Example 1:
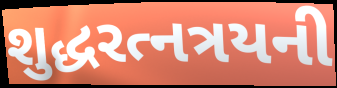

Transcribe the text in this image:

શુદ્ધરત્નત્રયની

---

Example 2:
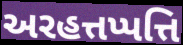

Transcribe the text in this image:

અરહત્તપ્પત્તિ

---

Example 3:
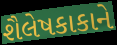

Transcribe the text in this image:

શૈલેષકાકાને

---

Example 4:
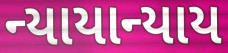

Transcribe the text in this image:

ન્યાયાન્યાય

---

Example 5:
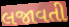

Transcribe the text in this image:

લજાવતી